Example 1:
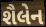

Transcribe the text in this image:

શૈલેન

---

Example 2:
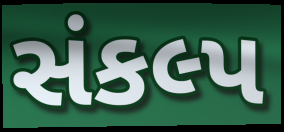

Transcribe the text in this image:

સંકલ્પ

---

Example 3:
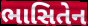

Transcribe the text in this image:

ભાસિતેન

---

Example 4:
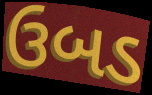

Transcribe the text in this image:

ઉબડ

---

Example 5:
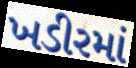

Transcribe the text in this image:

ખડીરમાં